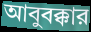
আবুবক্কার